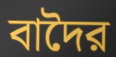
বাদৈর